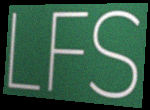
LFS